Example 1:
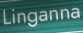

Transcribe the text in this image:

Linganna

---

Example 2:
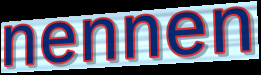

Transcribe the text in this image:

nennen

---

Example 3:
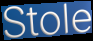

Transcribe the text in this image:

Stole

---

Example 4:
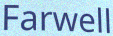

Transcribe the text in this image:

Farwell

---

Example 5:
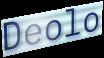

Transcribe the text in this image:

Deolo